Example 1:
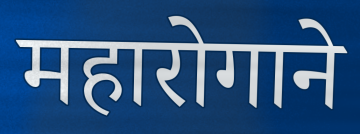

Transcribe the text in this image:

महारोगाने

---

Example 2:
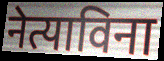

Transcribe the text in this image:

नेत्याविना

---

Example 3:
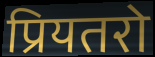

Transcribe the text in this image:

प्रियतरो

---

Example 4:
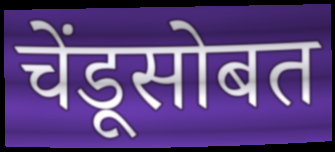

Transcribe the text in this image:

चेंडूसोबत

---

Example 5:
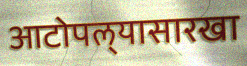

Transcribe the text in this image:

आटोपल्यासारखा